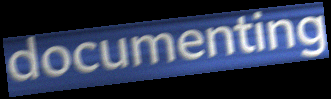
documenting